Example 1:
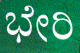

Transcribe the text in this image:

ಭೇರಿ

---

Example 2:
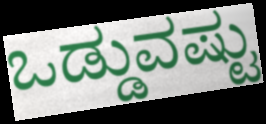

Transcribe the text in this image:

ಒಡ್ಡುವಷ್ಟು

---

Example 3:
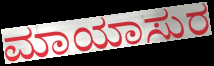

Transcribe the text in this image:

ಮಾಯಾಸುರ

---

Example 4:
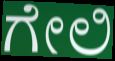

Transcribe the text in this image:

ಗೇಲಿ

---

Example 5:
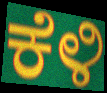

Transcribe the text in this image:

ಕೆಳಿ